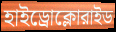
হাইড্রোক্লোরাইড